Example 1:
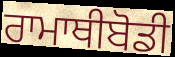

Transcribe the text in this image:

ਰਾਮਾਥੀਬੋਡੀ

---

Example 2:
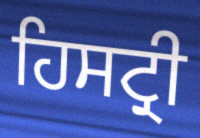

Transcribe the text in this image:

ਹਿਸਟ੍ਰੀ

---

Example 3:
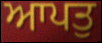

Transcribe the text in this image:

ਆਪਤੁ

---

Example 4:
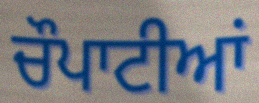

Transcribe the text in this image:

ਚੌਪਾਟੀਆਂ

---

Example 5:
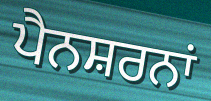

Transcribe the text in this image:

ਪੈਨਸ਼ਰਨਾਂ